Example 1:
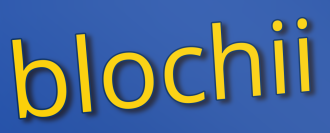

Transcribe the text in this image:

blochii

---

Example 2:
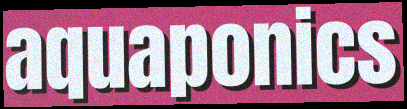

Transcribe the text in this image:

aquaponics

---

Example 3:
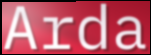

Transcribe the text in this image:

Arda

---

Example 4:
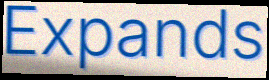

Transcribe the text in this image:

Expands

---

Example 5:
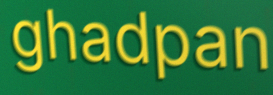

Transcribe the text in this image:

ghadpan